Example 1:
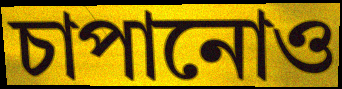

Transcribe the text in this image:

চাপানোও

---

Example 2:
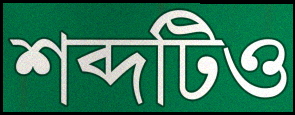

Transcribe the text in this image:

শব্দটিও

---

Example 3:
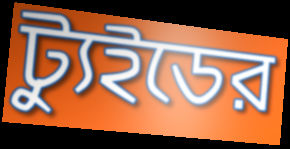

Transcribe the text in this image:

ট্যুইডের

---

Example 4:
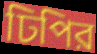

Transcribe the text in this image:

ঢিপির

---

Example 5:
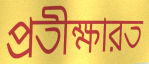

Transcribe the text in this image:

প্রতীক্ষারত